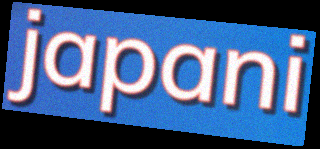
japani